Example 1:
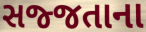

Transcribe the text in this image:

સજ્જતાના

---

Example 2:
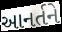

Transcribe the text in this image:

આનર્તને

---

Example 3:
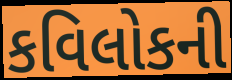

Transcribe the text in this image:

કવિલોકની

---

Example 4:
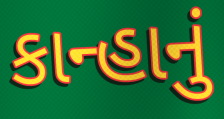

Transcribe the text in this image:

કાન્હાનું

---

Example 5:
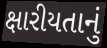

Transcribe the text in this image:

ક્ષારીયતાનું